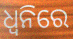
ଧ୍ଵନିରେ